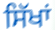
ਸਿੱਖਾਂ